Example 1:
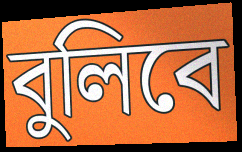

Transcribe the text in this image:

বুলিবে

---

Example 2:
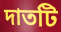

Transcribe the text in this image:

দাতটি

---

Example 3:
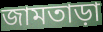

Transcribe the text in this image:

জামতাড়া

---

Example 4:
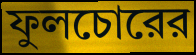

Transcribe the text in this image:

ফুলচোরের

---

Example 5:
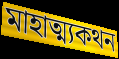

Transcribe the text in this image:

মাহাত্ম্যকথন